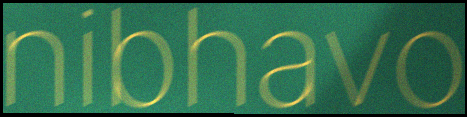
nibhavo